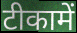
टीकामें